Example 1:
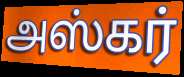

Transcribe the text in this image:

அஸ்கர்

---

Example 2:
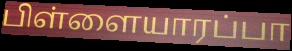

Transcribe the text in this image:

பிள்ளையாரப்பா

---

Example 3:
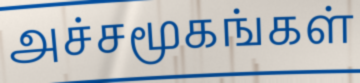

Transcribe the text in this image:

அச்சமூகங்கள்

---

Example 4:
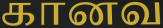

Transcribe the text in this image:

கானவ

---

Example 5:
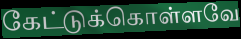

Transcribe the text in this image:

கேட்டுக்கொள்ளவே